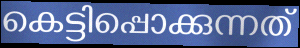
കെട്ടിപ്പൊക്കുന്നത്